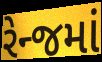
રેન્જમાં